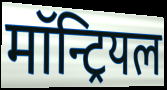
मॉन्ट्रियल